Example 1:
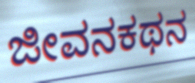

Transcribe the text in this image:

ಜೀವನಕಥನ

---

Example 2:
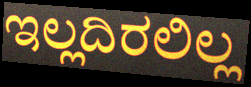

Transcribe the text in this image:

ಇಲ್ಲದಿರಲಿಲ್ಲ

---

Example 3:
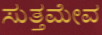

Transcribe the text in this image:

ಸುತ್ತಮೇವ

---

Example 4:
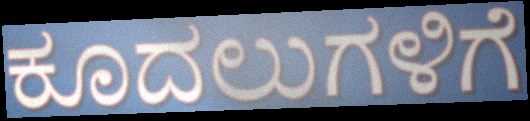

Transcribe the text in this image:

ಕೂದಲುಗಳಿಗೆ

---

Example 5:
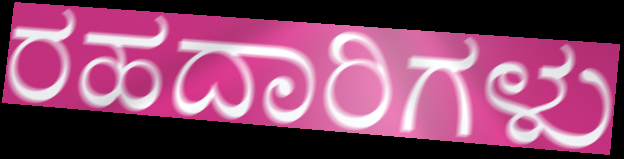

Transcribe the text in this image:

ರಹದಾರಿಗಳು